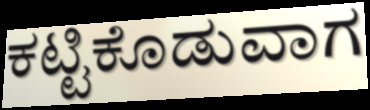
ಕಟ್ಟಿಕೊಡುವಾಗ